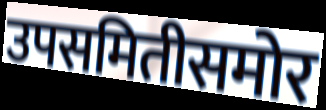
उपसमितीसमोर